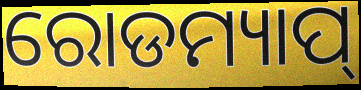
ରୋଡମ୍ୟାପ୍